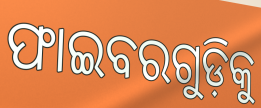
ଫାଇବରଗୁଡ଼ିକୁ